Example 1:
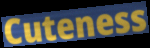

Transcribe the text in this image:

Cuteness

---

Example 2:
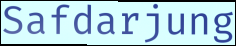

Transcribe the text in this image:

Safdarjung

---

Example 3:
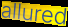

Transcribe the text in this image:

allured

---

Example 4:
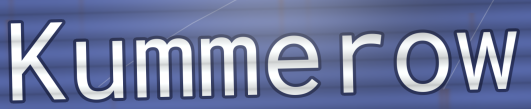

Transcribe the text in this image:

Kummerow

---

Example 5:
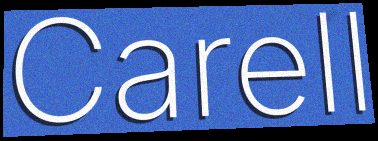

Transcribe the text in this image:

Carell